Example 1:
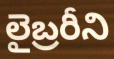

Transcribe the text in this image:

లైబ్రరీని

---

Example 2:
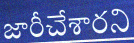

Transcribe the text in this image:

జారీచేశారని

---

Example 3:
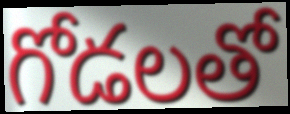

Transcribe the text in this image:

గోడలతో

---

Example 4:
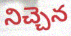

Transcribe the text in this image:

నిచ్చెన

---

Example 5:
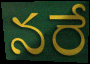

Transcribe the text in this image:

నరే